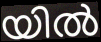
യിൽ